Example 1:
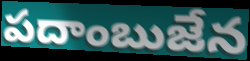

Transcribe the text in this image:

పదాంబుజేన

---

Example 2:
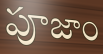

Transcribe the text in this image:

పూజాం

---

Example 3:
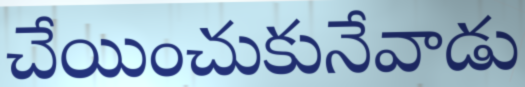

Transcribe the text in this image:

చేయించుకునేవాడు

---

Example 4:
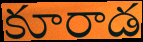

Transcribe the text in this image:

కూరాడ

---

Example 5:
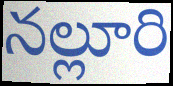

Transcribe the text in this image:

నల్లూరి